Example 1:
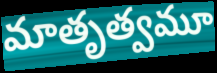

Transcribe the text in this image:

మాతృత్వమూ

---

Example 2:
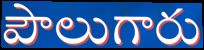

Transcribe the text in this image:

పౌలుగారు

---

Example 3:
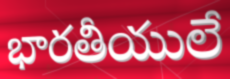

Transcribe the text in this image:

భారతీయులే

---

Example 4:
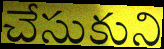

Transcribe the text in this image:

చేసుకుని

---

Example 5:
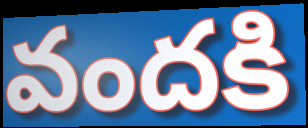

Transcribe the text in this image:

వందకి